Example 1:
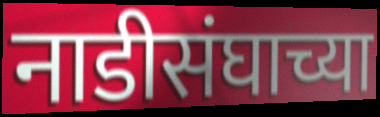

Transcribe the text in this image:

नाडीसंघाच्या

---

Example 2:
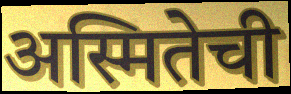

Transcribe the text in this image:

अस्मितेची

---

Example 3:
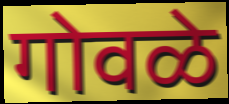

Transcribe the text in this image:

गोवळे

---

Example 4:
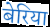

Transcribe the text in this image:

बेरिया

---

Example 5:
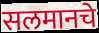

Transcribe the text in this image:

सलमानचे